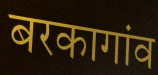
बरकागांव